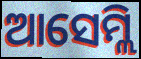
ଆସେମ୍ଲି